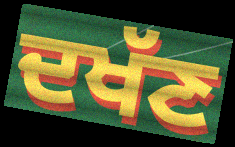
ਦਖੱਣ